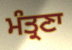
ਮੰਤ੍ਰਣਾ